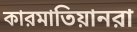
কারমাতিয়ানরা